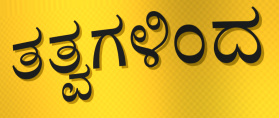
ತತ್ವಗಳಿಂದ